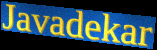
Javadekar